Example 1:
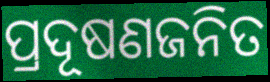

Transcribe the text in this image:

ପ୍ରଦୂଷଣଜନିତ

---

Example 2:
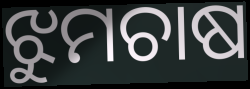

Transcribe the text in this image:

ଝୁମଚାଷ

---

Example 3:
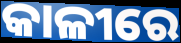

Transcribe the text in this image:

କାଳୀରେ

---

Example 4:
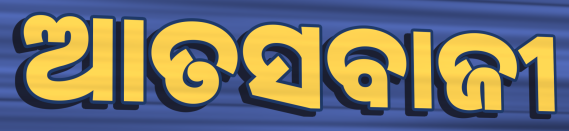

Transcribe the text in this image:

ଆତସବାଜୀ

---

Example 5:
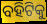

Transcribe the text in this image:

ବହିଟିକୁ